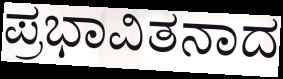
ಪ್ರಭಾವಿತನಾದ